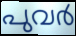
പുവർ